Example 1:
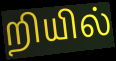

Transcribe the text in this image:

றியில்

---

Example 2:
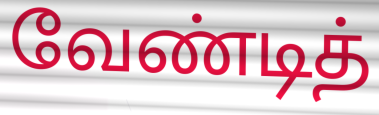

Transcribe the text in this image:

வேண்டித்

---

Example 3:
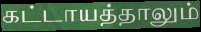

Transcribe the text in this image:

கட்டாயத்தாலும்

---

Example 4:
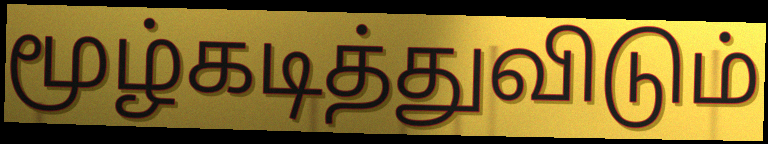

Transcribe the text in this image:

மூழ்கடித்துவிடும்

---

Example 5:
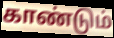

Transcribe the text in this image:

காண்டும்